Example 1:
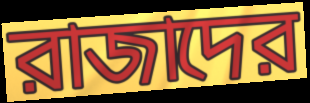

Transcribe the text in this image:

রাজাদের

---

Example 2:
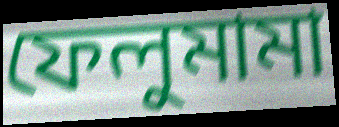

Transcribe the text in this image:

ফেলুমামা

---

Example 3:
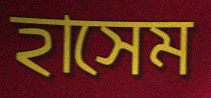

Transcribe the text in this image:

হাসেম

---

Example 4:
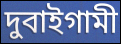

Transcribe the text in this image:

দুবাইগামী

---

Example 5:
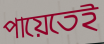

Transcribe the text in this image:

পায়েতেই